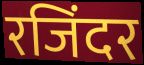
रजिंदर